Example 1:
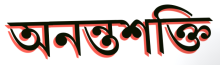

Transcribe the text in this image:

অনন্তশক্তি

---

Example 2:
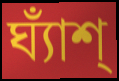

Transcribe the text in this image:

ঘ্যাঁশ্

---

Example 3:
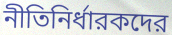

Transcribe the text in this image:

নীতিনির্ধারকদের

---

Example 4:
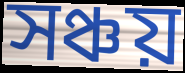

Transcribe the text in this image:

সঞ্চয়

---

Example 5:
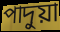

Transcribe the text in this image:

পাদুয়া